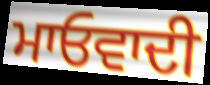
ਮਾਓਵਾਦੀ